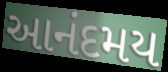
આનંદમય